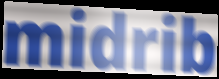
midrib